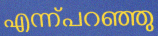
എന്ന്പറഞ്ഞു